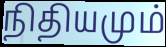
நிதியமும்